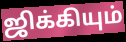
ஜிக்கியும்